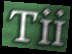
Tii